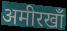
अमीरखाँ